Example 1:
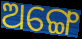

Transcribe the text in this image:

ଅଙ୍ଗେ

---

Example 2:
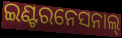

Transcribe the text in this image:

ଇଣ୍ଟରନେସନାଲ୍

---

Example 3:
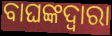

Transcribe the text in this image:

ବାଘଙ୍କଦ୍ୱାରା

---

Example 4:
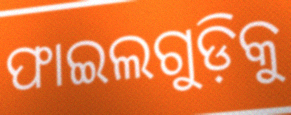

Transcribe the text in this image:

ଫାଇଲଗୁଡ଼ିକୁ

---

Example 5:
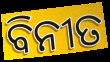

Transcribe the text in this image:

ବିନୀତ